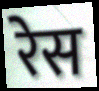
रेस